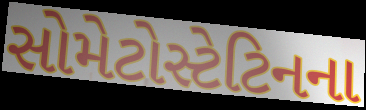
સોમેટોસ્ટેટિનના